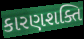
કારણશક્તિ